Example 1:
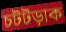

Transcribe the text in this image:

চটটড়াক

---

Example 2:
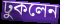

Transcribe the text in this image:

ঢুকলেন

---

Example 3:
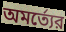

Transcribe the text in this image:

অমর্ত্যের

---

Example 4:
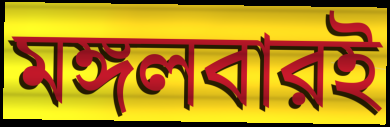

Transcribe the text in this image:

মঙ্গলবারই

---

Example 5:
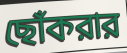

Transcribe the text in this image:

ছোঁকরার